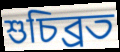
শুচিব্রত